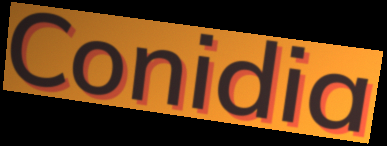
Conidia